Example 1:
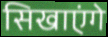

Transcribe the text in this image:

सिखाएंगे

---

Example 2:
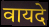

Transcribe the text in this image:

वायदे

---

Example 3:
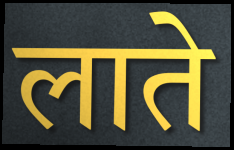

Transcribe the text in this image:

लाते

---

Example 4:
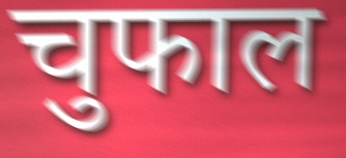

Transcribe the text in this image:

चुफाल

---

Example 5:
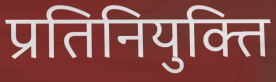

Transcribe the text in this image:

प्रतिनियुक्ति